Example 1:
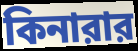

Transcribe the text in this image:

কিনারার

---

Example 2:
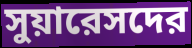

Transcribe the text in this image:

সুয়ারেসদের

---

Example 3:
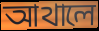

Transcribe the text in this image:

আথালে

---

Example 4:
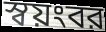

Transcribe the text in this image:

স্বয়ংবর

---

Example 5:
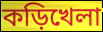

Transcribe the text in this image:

কড়িখেলা